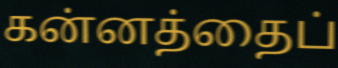
கன்னத்தைப்